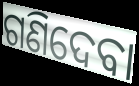
ଗଣିଦେବା